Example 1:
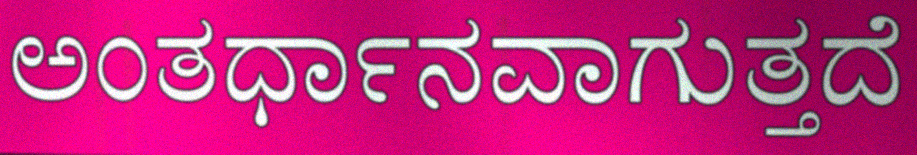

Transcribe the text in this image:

ಅಂತರ್ಧಾನವಾಗುತ್ತದೆ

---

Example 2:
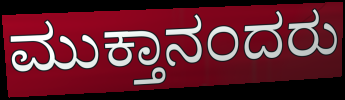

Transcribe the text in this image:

ಮುಕ್ತಾನಂದರು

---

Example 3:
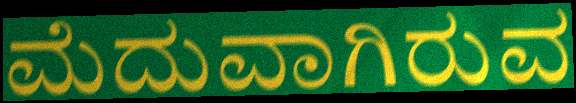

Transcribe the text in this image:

ಮೆದುವಾಗಿರುವ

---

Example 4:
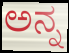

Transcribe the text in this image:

ಅನ್ನ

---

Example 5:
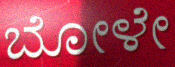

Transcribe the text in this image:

ಬೋಳೇ